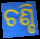
ଚଣ୍ଡି